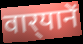
वार्‍यानें